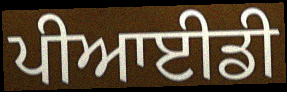
ਪੀਆਈਡੀ